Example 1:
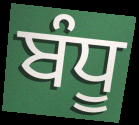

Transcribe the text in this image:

ਬੰਧੂ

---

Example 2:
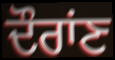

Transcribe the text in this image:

ਦੌਰਾਂਣ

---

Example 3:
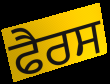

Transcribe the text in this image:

ਫੈਰਸ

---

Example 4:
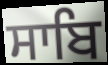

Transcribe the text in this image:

ਸਾਬਿ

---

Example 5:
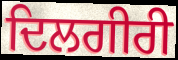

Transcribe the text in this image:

ਦਿਲਗੀਰੀ